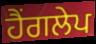
ਹੈਂਗਲੇਪ